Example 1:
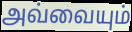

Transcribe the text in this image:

அவ்வையும்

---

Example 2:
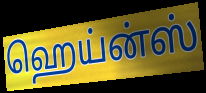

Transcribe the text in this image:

ஹெய்ன்ஸ்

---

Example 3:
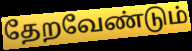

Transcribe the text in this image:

தேறவேண்டும்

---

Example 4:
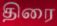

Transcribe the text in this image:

திரை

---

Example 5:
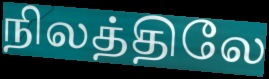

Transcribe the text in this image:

நிலத்திலே